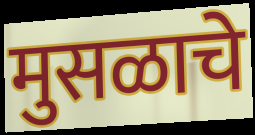
मुसळाचे